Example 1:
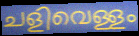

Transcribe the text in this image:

ചളിവെള്ളം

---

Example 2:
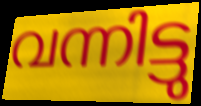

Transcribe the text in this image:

വന്നിട്ടു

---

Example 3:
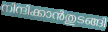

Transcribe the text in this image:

നിന്ദിക്കാൻതുടങ്ങി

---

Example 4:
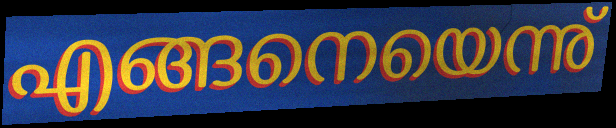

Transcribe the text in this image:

എങ്ങനെയെന്നു്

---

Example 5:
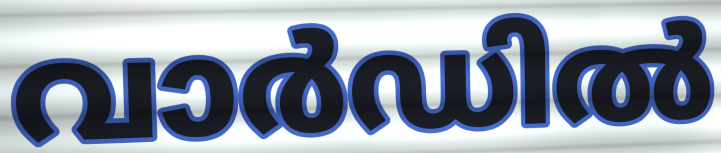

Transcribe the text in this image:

വാർഡിൽ